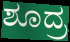
ಶೂದ್ರ